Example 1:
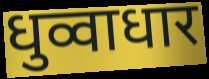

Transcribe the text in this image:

धुव्वाधार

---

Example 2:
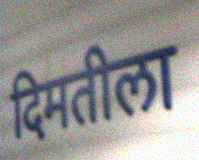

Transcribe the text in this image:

दिमतीला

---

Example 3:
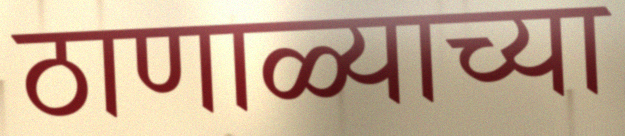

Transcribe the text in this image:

ठाणाळ्याच्या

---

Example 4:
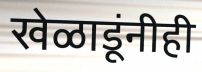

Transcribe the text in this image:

खेळाडूंनीही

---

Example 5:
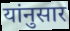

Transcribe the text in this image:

यांनुसार